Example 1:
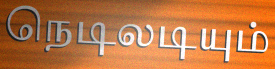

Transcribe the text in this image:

நெடிலடியும்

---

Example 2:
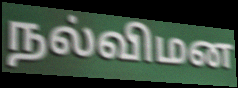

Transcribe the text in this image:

நல்விமன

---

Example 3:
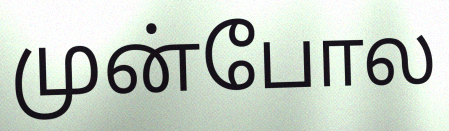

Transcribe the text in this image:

முன்போல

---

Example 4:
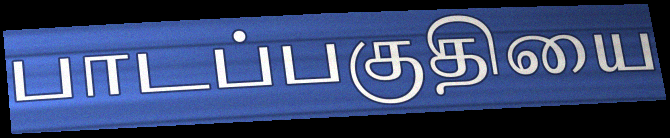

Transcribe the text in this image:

பாடப்பகுதியை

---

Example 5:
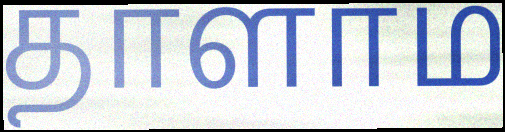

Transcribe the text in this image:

தாளாம